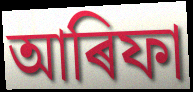
আৰিফা